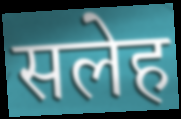
सलेह